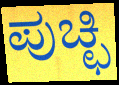
ಪುಚ್ಛಿ